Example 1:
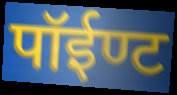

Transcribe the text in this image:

पॉईण्ट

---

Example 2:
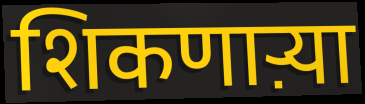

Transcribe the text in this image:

शिकणाऱ्‍या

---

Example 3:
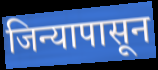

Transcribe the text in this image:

जिन्यापासून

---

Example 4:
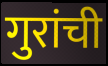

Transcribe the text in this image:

गुरांची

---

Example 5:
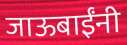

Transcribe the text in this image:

जाऊबाईंनी